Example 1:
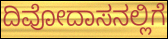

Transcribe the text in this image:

ದಿವೋದಾಸನಲ್ಲಿಗೆ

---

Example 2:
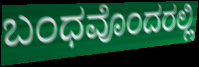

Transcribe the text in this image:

ಬಂಧವೊಂದರಲ್ಲಿ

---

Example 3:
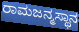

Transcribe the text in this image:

ರಾಮಜನ್ಮಸ್ಥಾನ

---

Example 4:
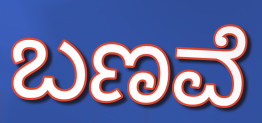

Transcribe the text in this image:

ಬಣವೆ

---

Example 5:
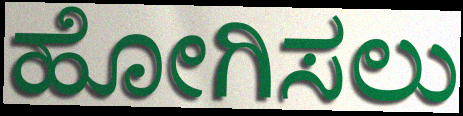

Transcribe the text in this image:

ಹೋಗಿಸಲು